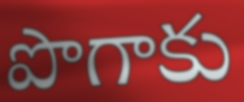
పొగాకు